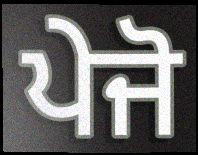
ਪੇਜੋ